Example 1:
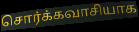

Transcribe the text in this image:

சொர்க்கவாசியாக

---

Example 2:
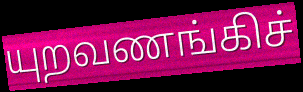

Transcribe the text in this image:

யுறவணங்கிச்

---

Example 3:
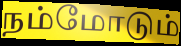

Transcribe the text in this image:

நம்மோடும்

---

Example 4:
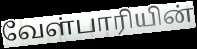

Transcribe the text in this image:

வேள்பாரியின்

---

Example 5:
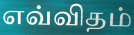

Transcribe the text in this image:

எவ்விதம்